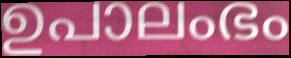
ഉപാലംഭം